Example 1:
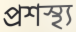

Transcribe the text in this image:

প্ৰশস্থ্য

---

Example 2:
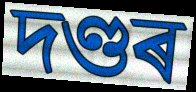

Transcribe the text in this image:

দণ্ডৰ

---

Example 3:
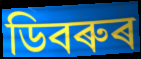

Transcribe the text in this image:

ডিবৰুৰ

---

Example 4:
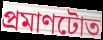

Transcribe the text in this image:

প্ৰমাণটোত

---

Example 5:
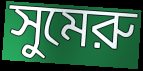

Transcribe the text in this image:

সুমেৰু